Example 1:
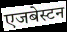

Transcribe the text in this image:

एजबेस्टन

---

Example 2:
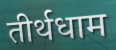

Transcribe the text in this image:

तीर्थधाम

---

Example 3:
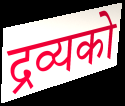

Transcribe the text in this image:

द्रव्यको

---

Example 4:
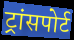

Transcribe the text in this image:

ट्रांसपोर्ट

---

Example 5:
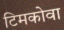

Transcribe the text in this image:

टिमकोवा